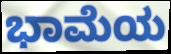
ಭಾಮೆಯ